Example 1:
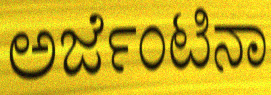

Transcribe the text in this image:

ಅರ್ಜೆಂಟಿನಾ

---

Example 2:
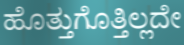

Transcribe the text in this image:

ಹೊತ್ತುಗೊತ್ತಿಲ್ಲದೇ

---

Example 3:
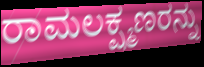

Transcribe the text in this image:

ರಾಮಲಕ್ಷ್ಮಣರನ್ನು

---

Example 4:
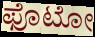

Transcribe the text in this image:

ಫೊಟೋ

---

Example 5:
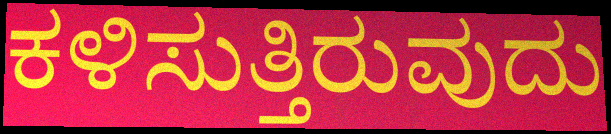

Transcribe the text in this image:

ಕಳಿಸುತ್ತಿರುವುದು